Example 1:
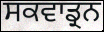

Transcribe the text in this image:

ਸਕਵਾਡ੍ਰਨ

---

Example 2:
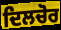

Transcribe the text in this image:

ਦਿਲਚੋਰ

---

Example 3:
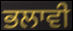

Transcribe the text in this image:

ਭਲਾਵੀ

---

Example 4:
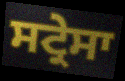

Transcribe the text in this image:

ਸਟ੍ਰੇਸਾ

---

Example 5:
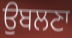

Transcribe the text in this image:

ਉਬਲਣਾ